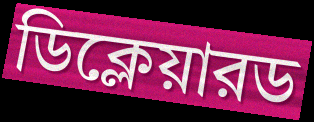
ডিক্লেয়ারড